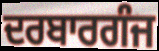
ਦਰਬਾਰਗੰਜ